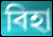
বিহা